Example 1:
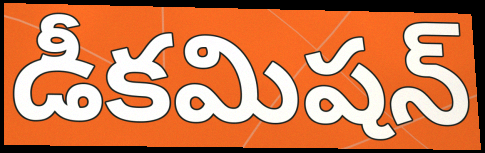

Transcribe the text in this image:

డీకమిషన్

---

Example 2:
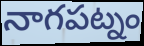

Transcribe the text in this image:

నాగపట్నం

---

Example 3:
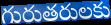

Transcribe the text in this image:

గురుతరులకు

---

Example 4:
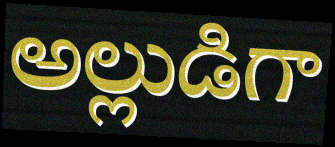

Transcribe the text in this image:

అల్లుడిగా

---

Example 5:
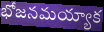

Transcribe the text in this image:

భోజనమయ్యాక